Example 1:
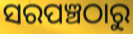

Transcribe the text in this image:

ସରପଞ୍ଚଠାରୁ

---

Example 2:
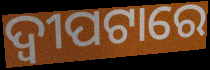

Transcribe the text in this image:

ଦ୍ୱୀପଟାରେ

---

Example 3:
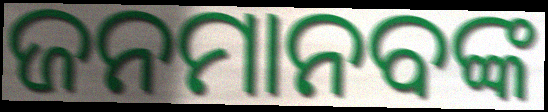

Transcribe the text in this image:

ଜନମାନବଙ୍କ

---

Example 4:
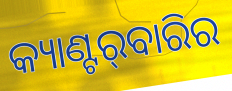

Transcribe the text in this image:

କ୍ୟାଣ୍ଟର୍‌ବାରିର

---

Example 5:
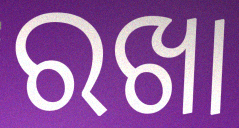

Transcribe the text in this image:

ରଖା